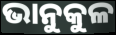
ଭାନୁକୁଳ